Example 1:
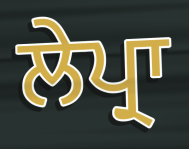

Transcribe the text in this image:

ਲੇਪ੍ਰਾ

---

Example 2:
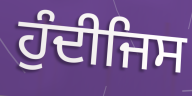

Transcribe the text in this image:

ਹੁੰਦੀਜਿਸ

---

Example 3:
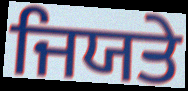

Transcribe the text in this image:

ਜਿਯਤੇ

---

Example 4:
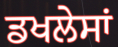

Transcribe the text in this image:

ਡਖਲੇਸਾਂ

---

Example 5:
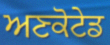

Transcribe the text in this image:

ਅਣਕੋਟੇਡ